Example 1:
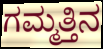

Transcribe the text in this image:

ಗಮ್ಮತ್ತಿನ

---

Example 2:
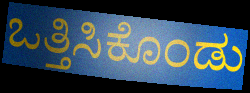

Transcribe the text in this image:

ಒತ್ತಿಸಿಕೊಂಡು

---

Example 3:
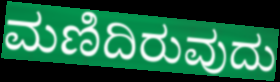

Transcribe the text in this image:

ಮಣಿದಿರುವುದು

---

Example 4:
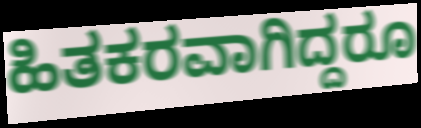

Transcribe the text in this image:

ಹಿತಕರವಾಗಿದ್ದರೂ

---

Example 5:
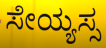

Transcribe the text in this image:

ಸೇಯ್ಯಸ್ಸ